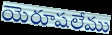
యెరూషలేము